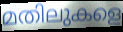
മതിലുകളെ